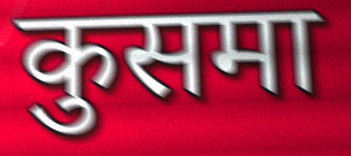
कुसमा